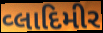
વ્લાદિમીર